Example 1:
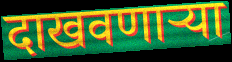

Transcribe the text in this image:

दाखवणाऱ्या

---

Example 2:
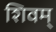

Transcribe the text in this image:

शिवम्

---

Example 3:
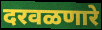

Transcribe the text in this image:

दरवळणारे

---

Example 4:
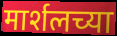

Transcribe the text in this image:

मार्शलच्या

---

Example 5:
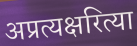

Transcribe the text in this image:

अप्रत्यक्षरित्या